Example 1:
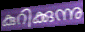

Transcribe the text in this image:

കുറിക്കുന്നു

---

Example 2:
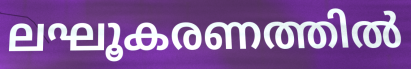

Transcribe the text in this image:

ലഘൂകരണത്തിൽ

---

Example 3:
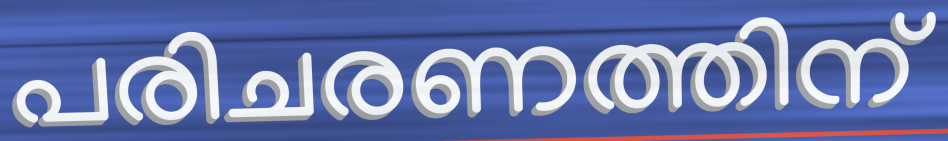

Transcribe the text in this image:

പരിചരണത്തിന്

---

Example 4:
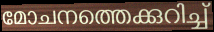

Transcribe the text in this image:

മോചനത്തെക്കുറിച്ച്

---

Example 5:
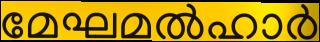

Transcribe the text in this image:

മേഘമൽഹാർ